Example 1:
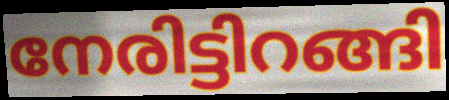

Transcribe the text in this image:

നേരിട്ടിറങ്ങി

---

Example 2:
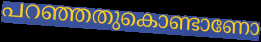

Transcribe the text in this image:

പറഞ്ഞതുകൊണ്ടാണോ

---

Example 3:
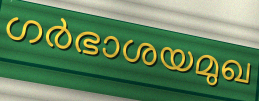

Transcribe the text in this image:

ഗർഭാശയമുഖ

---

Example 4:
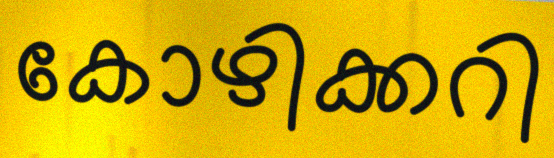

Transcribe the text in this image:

കോഴിക്കറി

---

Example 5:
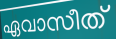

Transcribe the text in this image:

ഏവാസീത്